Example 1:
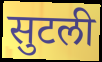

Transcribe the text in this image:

सुटली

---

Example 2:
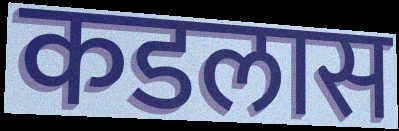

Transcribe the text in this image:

कडलास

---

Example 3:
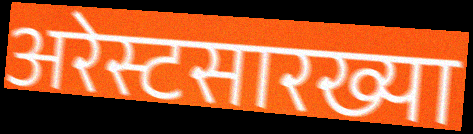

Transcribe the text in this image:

अरेस्टसारख्या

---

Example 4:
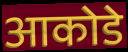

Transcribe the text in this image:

आकोडे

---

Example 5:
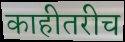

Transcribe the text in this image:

काहीतरीच